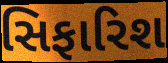
સિફારિશ